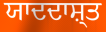
ਯਾਦਦਾਸ਼੍ਤ